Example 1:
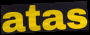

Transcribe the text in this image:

atas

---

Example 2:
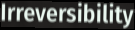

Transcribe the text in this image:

Irreversibility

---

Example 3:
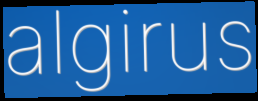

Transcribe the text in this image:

algirus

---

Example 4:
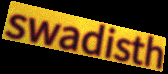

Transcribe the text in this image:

swadisth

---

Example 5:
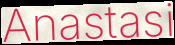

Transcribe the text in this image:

Anastasi